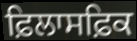
ਫ਼ਿਲਾਸਫ਼ਿਕ